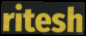
ritesh